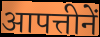
आपत्तीनें